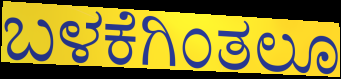
ಬಳಕೆಗಿಂತಲೂ